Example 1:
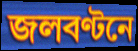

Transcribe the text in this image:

জলবণ্টনে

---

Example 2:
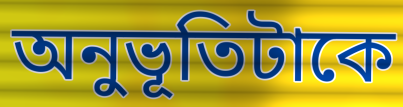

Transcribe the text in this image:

অনুভূতিটাকে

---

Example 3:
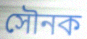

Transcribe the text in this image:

সৌনক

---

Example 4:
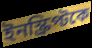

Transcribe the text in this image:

ইনস্ক্রিপ্টকে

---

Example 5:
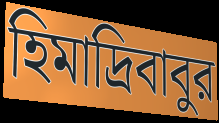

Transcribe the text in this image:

হিমাদ্রিবাবুর